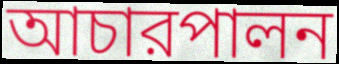
আচারপালন